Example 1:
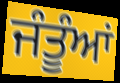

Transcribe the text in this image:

ਜੰਤੂੰਆਂ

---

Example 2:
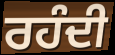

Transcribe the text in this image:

ਰਹੰਦੀ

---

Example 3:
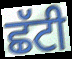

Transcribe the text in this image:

ਛੱਟੀ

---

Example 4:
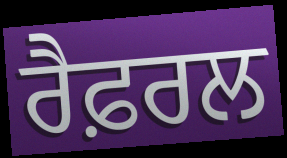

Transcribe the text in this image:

ਰੈਫ਼ਰਲ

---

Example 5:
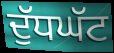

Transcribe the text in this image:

ਦੁੱਧਘੱਟ